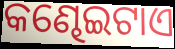
କଣ୍ଢେଇଟାଏ